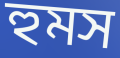
হুমস